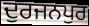
ਦੁਰਜਨਪੁਰ